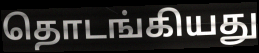
தொடங்கியது